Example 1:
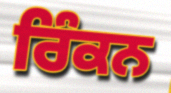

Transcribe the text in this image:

ਰਿੰਕਨ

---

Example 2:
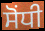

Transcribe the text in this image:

ਸੋਂਧੀ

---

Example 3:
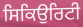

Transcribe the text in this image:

ਸਿਕਿਉਰਿਟੀ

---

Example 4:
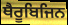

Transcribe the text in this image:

ਥੈਰੂਬਿਜਿਨ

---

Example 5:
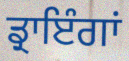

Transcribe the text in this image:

ਡ੍ਰਾਇੰਗਾਂ